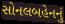
સોનલબહેનનું